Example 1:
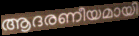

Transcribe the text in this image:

ആദരണീയമായി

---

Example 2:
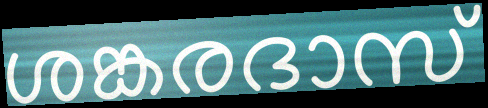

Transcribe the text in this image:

ശങ്കരദാസ്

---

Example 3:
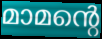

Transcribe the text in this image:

മാമന്റെ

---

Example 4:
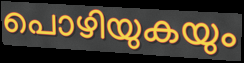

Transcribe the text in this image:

പൊഴിയുകയും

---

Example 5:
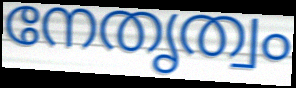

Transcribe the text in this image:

നേതൃത്വം